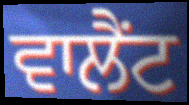
ਵਾਲੈਂਟ